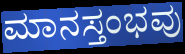
ಮಾನಸ್ತಂಭವು